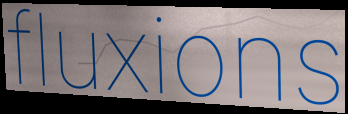
fluxions